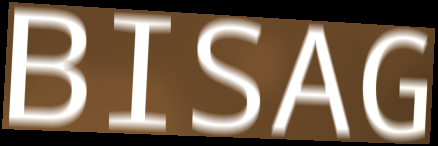
BISAG